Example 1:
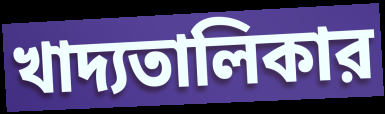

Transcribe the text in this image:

খাদ্যতালিকার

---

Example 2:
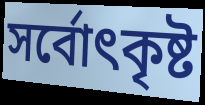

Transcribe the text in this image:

সর্বোৎকৃষ্ট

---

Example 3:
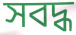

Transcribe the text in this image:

সবদ্ধ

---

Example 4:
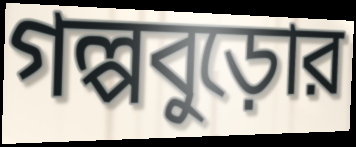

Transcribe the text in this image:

গল্পবুড়োর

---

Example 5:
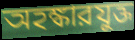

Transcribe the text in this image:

অহঙ্কারযুক্ত